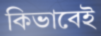
কিভাবেই